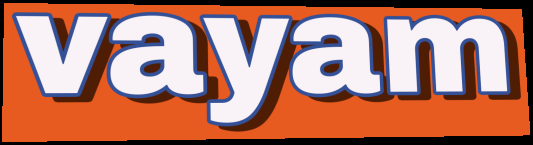
vayam